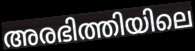
അരഭിത്തിയിലെ